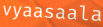
vyaasaala